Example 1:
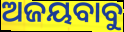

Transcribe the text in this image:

ଅଜୟବାବୁ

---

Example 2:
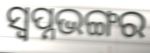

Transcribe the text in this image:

ସ୍ୱପ୍ନଭଙ୍ଗର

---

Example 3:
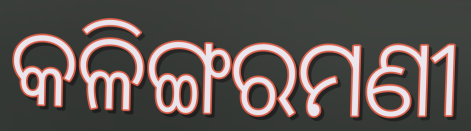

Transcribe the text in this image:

କଳିଙ୍ଗରମଣୀ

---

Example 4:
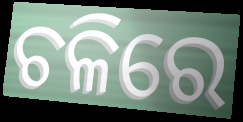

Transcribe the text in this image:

ଚଳିରେ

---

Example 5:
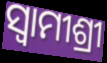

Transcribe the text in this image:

ସ୍ଵାମୀଶ୍ରୀ